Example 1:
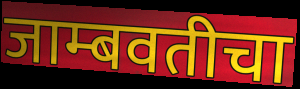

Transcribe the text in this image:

जाम्बवतीचा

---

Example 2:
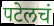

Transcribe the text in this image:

पटेलचं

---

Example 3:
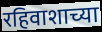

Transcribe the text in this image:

रहिवाशाच्या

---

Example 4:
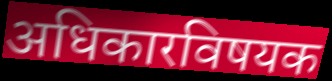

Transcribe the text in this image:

अधिकारविषयक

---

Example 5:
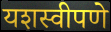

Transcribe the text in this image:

यशस्वीपणे